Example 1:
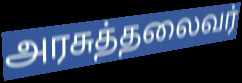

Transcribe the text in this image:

அரசுத்தலைவர்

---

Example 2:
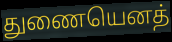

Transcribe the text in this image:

துணையெனத்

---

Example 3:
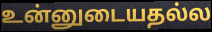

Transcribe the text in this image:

உன்னுடையதல்ல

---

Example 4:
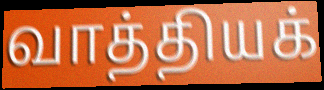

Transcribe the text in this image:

வாத்தியக்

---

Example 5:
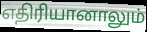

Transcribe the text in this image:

எதிரியானாலும்